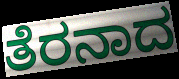
ತೆರನಾದ